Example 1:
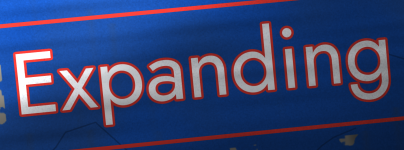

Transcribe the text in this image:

Expanding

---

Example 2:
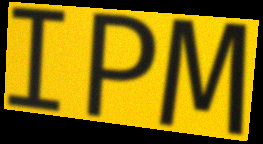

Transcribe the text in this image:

IPM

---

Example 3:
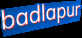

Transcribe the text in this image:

badlapur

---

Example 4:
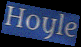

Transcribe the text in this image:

Hoyle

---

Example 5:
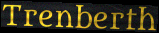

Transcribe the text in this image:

Trenberth